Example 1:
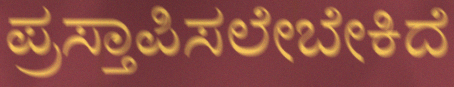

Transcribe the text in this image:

ಪ್ರಸ್ತಾಪಿಸಲೇಬೇಕಿದೆ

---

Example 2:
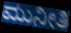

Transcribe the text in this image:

ಮುನೀತಿ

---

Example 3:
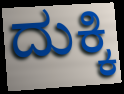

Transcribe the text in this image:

ದುಕ್ಕಿ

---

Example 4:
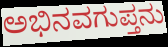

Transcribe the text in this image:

ಅಭಿನವಗುಪ್ತನು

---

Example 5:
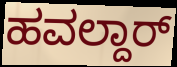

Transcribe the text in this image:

ಹವಲ್ದಾರ್